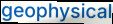
geophysical